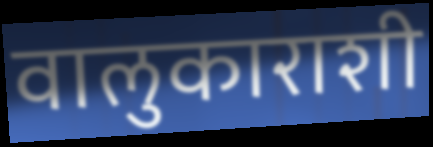
वालुकाराशी